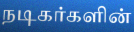
நடிகர்களின்